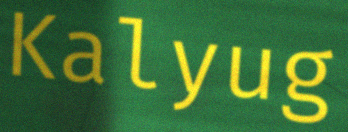
Kalyug